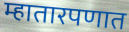
म्हातारपणात